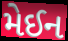
મેઈન